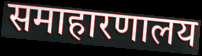
समाहारणालय